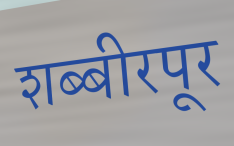
शब्बीरपूर